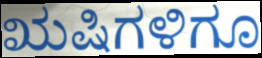
ಋಷಿಗಳಿಗೂ